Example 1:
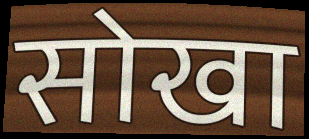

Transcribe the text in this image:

सोखा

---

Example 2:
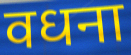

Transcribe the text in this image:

वधना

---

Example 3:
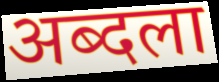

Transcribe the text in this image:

अब्दला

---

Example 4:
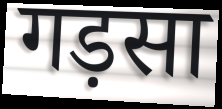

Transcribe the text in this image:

गड़सा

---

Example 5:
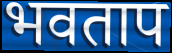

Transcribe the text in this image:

भवताप